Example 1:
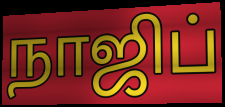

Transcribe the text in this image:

நாஜிப்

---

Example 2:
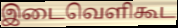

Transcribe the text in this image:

இடைவெளிகூட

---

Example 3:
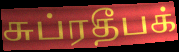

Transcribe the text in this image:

சுப்ரதீபக்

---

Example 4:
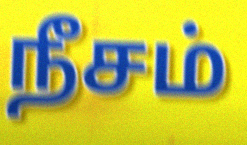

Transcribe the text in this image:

நீசம்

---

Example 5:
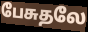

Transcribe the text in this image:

பேசுதலே